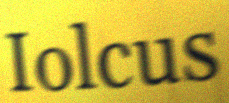
Iolcus